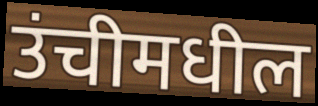
उंचीमधील